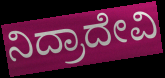
ನಿದ್ರಾದೇವಿ